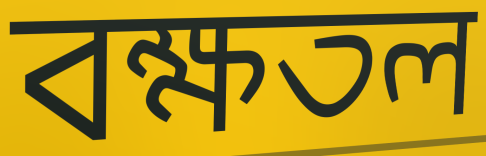
বক্ষতল